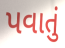
પવાતું